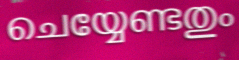
ചെയ്യേണ്ടതും